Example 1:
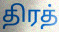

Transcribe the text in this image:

திரத்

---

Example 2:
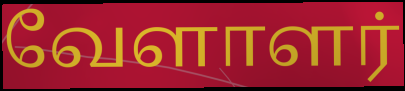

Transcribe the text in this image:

வேளாளர்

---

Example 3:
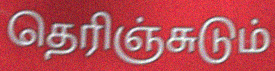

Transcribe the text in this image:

தெரிஞ்சுடும்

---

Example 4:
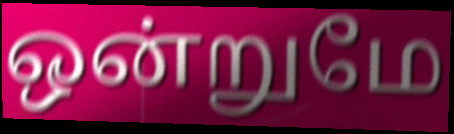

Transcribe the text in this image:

ஒன்றுமே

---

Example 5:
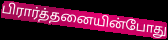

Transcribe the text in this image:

பிரார்த்தனையின்போது